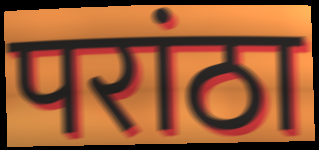
परांठा